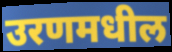
उरणमधील